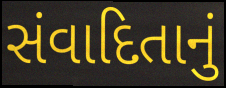
સંવાદિતાનું